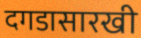
दगडासारखी